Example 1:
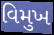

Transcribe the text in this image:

વિમુખ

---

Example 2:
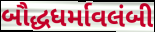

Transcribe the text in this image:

બૌદ્ધધર્માવલંબી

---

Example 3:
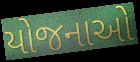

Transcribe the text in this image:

યોજનાઓ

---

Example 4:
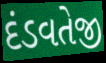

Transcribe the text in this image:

દંડવતેજી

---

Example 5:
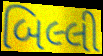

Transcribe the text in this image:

બિલ્લી